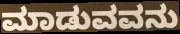
ಮಾಡುವವನು